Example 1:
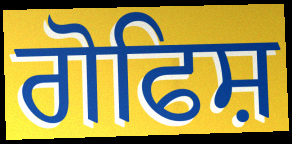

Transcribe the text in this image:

ਗੋਫਿਸ਼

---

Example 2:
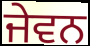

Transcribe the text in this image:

ਜੇਵਨ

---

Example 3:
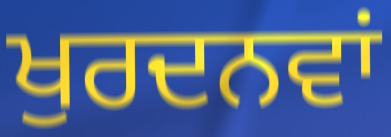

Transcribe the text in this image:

ਖੁਰਦਨਵਾਂ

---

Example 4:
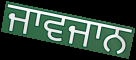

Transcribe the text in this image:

ਜਾਵਜਾਨ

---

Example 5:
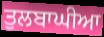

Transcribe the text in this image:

ਤੁਲਬਾਘੀਆ